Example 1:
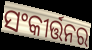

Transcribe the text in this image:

ସଂକୀର୍ତ୍ତନର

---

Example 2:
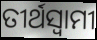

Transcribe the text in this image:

ତୀର୍ଥସ୍ୱାମୀ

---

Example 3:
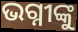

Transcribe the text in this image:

ଭଗ୍ନୀଙ୍କୁ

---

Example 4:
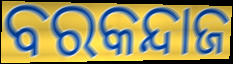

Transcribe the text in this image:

ବରକନ୍ଦାଜ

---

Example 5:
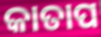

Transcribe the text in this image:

କାତାପ